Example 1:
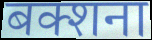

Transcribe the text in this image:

बक्शना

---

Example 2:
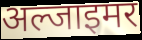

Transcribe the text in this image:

अल्जाइमर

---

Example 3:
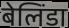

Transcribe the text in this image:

बेलिंडा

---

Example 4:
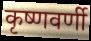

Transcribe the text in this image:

कृष्णवर्णी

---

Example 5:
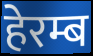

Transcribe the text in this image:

हेरम्ब